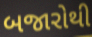
બજારોથી